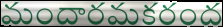
మందారమకరంద